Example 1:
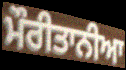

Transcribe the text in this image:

ਮੌਰੀਤਾਨੀਆ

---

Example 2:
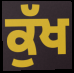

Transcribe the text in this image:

ਕੁੱਖ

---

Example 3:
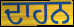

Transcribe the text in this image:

ਦਾਹਨ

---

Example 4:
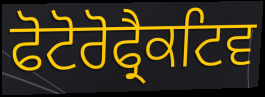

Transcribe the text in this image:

ਫੋਟੋਰੋਫ੍ਰੈਕਟਿਵ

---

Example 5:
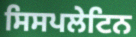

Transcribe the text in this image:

ਸਿਸਪਲੇਟਿਨ